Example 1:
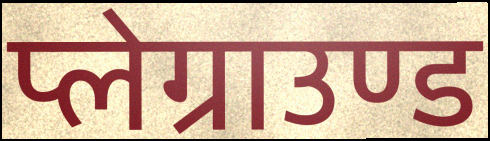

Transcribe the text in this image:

प्लेग्राउण्ड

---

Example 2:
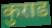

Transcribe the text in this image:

कुराड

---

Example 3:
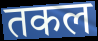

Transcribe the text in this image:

तकल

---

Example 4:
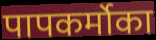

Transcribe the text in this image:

पापकर्मोका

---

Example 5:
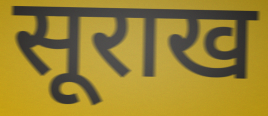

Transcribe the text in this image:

सूराख